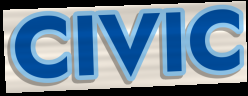
CIVIC